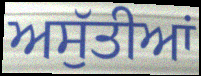
ਅਸੁੱਤੀਆਂ